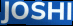
JOSHI